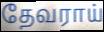
தேவராய்